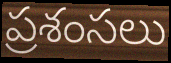
ప్రశంసలు